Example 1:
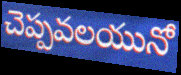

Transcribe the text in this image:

చెప్పవలయునో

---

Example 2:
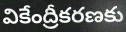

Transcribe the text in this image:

వికేంద్రీకరణకు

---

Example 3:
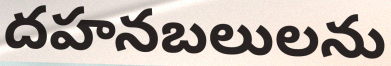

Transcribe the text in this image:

దహనబలులను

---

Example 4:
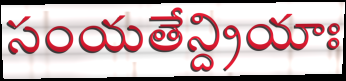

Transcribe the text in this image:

సంయతేన్ద్రియాః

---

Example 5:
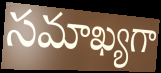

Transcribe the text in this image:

సమాఖ్యగా